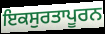
ਇਕਸੁਰਤਾਪੂਰਨ